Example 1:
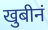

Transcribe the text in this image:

खुबीनं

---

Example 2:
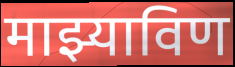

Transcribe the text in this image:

माझ्याविण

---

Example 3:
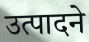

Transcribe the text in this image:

उत्पादने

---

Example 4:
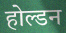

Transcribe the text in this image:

होल्डन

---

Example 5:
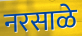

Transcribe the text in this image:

नरसाळे